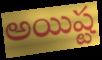
అయిష్ట